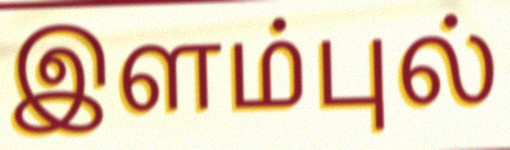
இளம்புல்